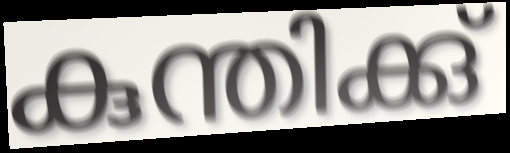
കുന്തിക്കു്